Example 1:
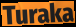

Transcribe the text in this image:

Turaka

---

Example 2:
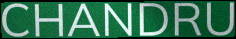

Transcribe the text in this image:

CHANDRU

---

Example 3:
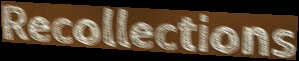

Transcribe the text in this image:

Recollections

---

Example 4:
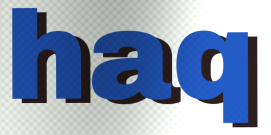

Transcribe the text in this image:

haq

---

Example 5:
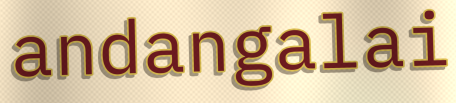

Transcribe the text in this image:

andangalai